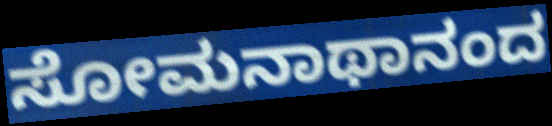
ಸೋಮನಾಥಾನಂದ